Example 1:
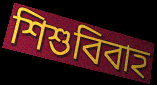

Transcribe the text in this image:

শিশুবিবাহ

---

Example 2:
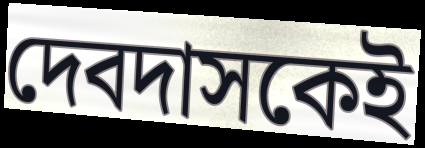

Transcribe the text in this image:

দেবদাসকেই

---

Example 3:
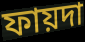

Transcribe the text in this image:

ফায়দা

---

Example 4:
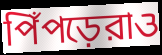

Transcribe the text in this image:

পিঁপড়েরাও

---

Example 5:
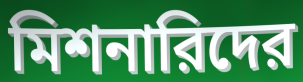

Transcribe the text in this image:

মিশনারিদের